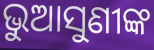
ଭୁଆସୁଣୀଙ୍କ